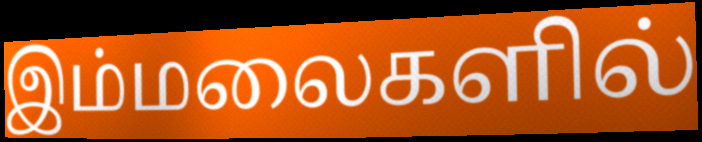
இம்மலைகளில்